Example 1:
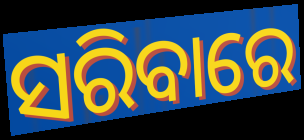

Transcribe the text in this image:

ସରିବାରେ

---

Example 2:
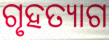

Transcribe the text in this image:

ଗୃହତ୍ୟାଗ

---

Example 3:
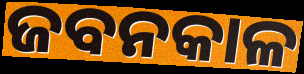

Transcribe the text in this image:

ଜବନକାଳ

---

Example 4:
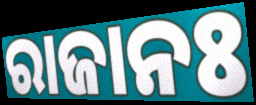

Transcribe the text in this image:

ରାଜାନଃ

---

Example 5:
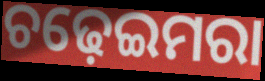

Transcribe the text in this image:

ଚଢ଼େଇମରା